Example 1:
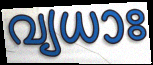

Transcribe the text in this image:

വ്യധാഃ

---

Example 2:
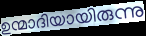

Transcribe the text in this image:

ഉന്മാദിയായിരുന്നു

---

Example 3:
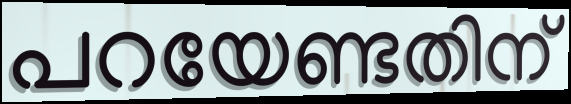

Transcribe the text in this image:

പറയേണ്ടതിന്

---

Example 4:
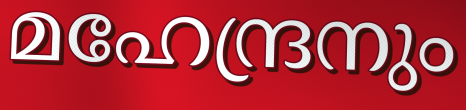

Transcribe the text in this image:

മഹേന്ദ്രനും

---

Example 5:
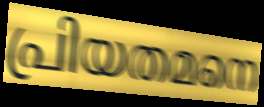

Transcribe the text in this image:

പ്രിയതമനെ